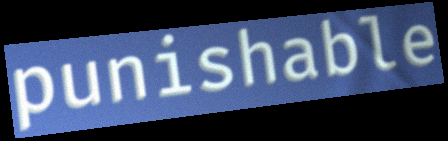
punishable